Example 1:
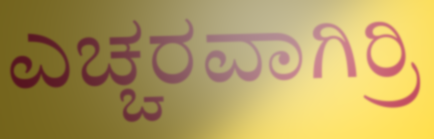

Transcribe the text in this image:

ಎಚ್ಚರವಾಗಿರ್ರಿ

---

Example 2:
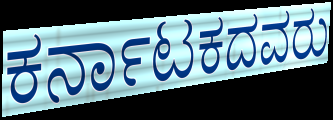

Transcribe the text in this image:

ಕರ್ನಾಟಕದವರು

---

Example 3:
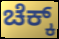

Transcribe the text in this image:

ಚೆಕ್ಕ್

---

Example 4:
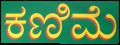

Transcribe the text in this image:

ಕಣಿಮೆ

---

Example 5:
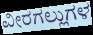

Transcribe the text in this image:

ವೀರಗಲ್ಲುಗಳ